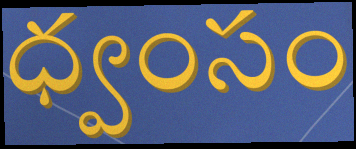
ధ్వంసం